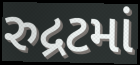
રુદ્રટમાં